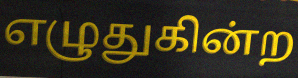
எழுதுகின்ற